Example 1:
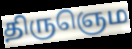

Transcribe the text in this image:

திருஞெம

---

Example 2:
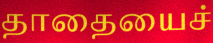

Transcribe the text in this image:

தாதையைச்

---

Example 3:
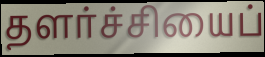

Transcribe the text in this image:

தளர்ச்சியைப்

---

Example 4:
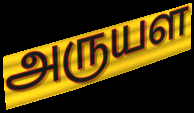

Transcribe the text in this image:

அருயள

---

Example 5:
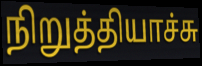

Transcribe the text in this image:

நிறுத்தியாச்சு